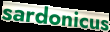
sardonicus